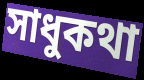
সাধুকথা